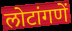
लोटांगणें